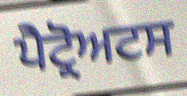
ਪੈਟ੍ਰੋਅਟਸ